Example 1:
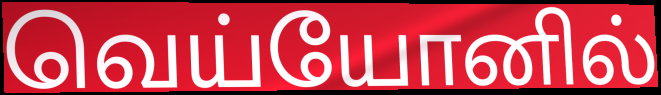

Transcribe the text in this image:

வெய்யோனில்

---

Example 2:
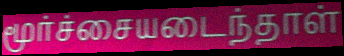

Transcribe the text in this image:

மூர்ச்சையடைந்தாள்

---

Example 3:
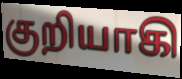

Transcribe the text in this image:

குறியாகி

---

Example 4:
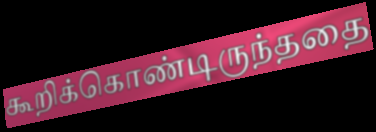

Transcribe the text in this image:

கூறிக்கொண்டிருந்ததை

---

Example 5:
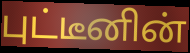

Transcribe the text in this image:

புட்டீனின்